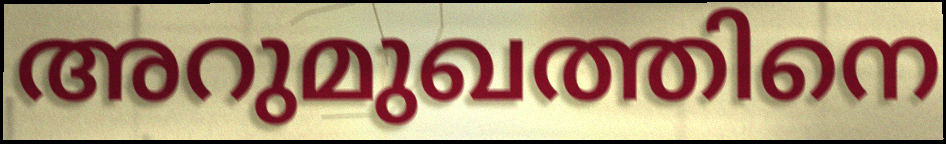
അറുമുഖത്തിനെ